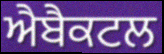
ਐਬੈਕਟਲ